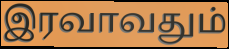
இரவாவதும்